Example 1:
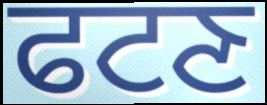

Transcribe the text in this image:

ਫਟਣ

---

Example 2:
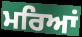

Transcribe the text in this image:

ਮਰਿਆਂ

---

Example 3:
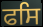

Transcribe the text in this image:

ਫਸਿ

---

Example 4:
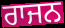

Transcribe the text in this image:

ਰਾਜਨ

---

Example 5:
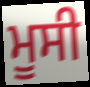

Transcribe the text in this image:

ਮੂਸੀ